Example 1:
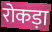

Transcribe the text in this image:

रोकड़ा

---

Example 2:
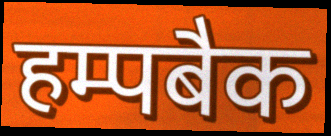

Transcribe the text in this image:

हम्पबैक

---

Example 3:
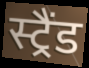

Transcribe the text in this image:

स्ट्रैंड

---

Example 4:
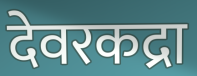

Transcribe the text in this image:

देवरकद्रा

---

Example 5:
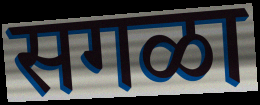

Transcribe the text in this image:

सगळा